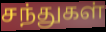
சந்துகள்